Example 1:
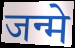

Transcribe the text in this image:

जन्मे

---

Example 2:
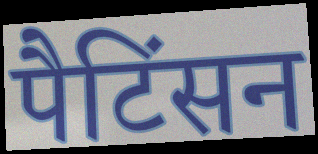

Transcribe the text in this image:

पैटिंसन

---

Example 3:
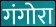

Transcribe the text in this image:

गंगोरा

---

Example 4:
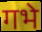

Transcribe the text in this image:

गभे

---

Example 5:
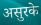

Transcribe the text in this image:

असुरके